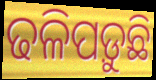
ଢଳିପଡ଼ୁଛି